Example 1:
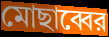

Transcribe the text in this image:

মোছাব্বের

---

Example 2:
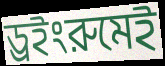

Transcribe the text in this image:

ড্রইংরুমেই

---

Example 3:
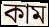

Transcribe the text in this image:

কাম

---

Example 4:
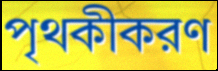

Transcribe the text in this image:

পৃথকীকরণ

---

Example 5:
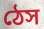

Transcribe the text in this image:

ঠেস